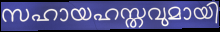
സഹായഹസ്തവുമായി